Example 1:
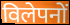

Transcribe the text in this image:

विलेपनों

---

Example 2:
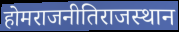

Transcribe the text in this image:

होमराजनीतिराजस्थान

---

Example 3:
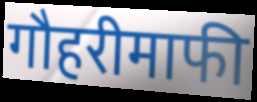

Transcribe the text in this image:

गौहरीमाफी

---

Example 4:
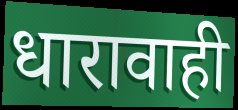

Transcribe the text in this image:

धारावाही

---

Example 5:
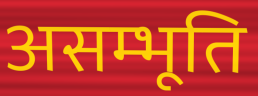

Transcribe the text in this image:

असम्भूति